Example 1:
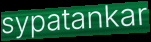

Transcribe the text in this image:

sypatankar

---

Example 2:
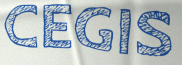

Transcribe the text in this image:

CEGIS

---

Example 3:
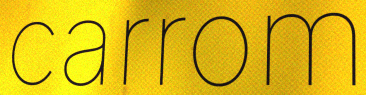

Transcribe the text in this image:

carrom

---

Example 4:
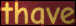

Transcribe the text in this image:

thave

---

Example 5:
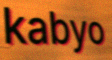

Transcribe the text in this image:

kabyo